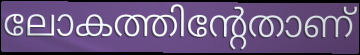
ലോകത്തിന്റേതാണ്